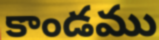
కాండము